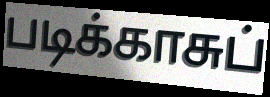
படிக்காசுப்